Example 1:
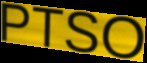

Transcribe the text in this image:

PTSO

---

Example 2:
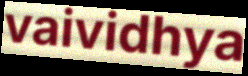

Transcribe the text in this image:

vaividhya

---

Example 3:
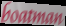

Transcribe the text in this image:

boatman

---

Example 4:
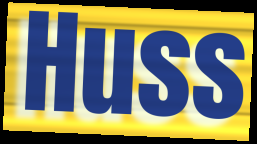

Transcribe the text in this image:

Huss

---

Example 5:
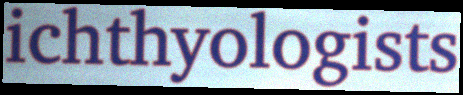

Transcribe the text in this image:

ichthyologists